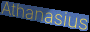
Athanasius